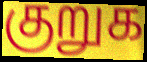
குறுக